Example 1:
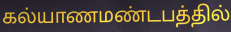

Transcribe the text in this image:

கல்யாணமண்டபத்தில்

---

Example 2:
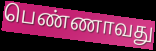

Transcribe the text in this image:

பெண்ணாவது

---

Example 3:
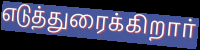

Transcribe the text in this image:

எடுத்துரைக்கிறார்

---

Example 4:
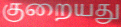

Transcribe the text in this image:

குறையது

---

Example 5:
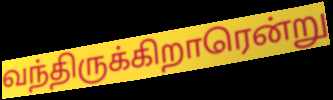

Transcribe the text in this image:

வந்திருக்கிறாரென்று